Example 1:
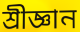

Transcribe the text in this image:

শ্ৰীজ্ঞান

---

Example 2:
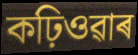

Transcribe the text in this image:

কঢ়িওৱাৰ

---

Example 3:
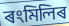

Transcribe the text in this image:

ৰংমিলিৰ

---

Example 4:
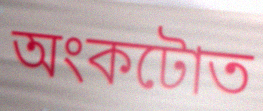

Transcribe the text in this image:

অংকটোত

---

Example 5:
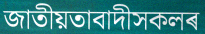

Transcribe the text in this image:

জাতীয়তাবাদীসকলৰ